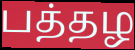
பத்தழ